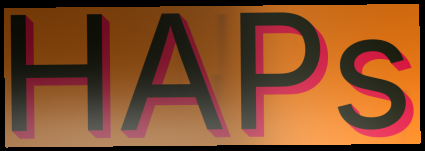
HAPs